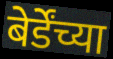
बेर्डेंच्या